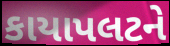
કાયાપલટને